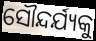
ସୌନ୍ଦର୍ଯ୍ୟକୁ